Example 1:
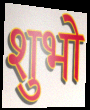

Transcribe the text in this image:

शुभो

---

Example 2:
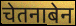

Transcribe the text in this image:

चेतनाबेन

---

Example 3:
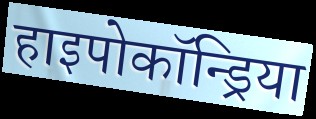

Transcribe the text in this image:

हाइपोकॉन्ड्रिया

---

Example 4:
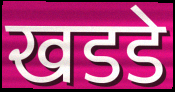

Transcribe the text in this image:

खडडे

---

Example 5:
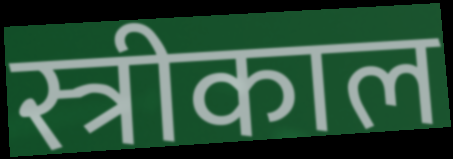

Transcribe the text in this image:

स्त्रीकाल